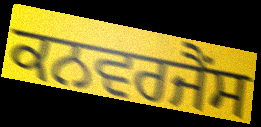
ਕਨਵਰਜੈਂਸ